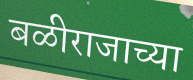
बळीराजाच्या